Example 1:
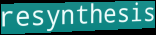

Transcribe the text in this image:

resynthesis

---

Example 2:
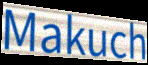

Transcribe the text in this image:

Makuch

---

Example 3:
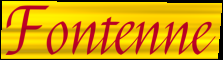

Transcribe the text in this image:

Fontenne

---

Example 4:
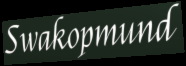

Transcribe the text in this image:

Swakopmund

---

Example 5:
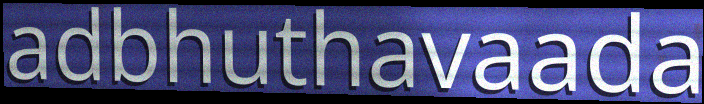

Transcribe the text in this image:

adbhuthavaada